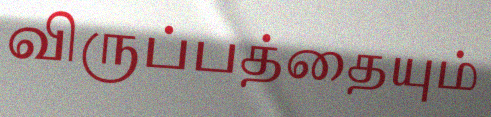
விருப்பத்தையும்